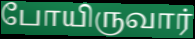
போயிருவார்